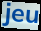
jeu